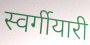
स्वर्गीयारी